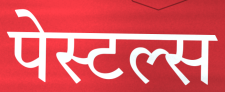
पेस्टल्स